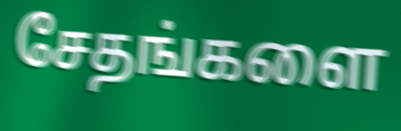
சேதங்களை